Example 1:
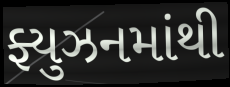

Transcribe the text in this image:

ફ્યુઝનમાંથી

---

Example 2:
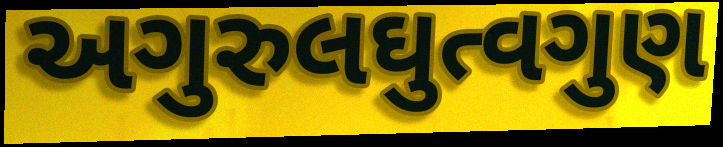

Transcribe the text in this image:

અગુરુલઘુત્વગુણ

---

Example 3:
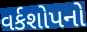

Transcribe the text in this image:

વર્કશોપનો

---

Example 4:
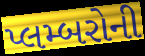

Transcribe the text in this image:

પ્લમ્બરોની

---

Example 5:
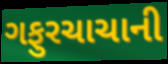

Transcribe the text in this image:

ગફુરચાચાની